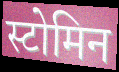
स्टोमिन